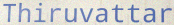
Thiruvattar